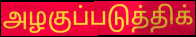
அழகுப்படுத்திக்